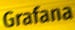
Grafana